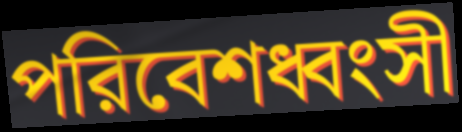
পরিবেশধ্বংসী